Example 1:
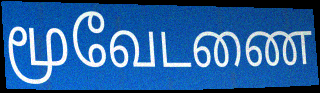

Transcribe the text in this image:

மூவேடணை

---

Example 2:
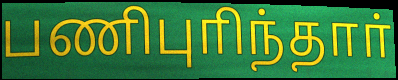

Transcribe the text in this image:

பணிபுரிந்தார்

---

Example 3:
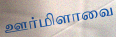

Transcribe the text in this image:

ஊர்மிளாவை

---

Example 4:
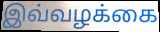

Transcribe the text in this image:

இவ்வழக்கை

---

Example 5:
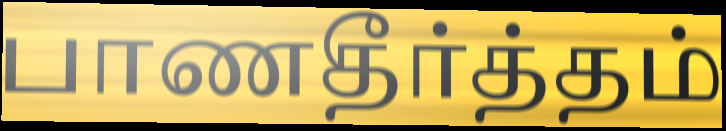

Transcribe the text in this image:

பாணதீர்த்தம்